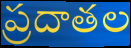
ప్రదాతల